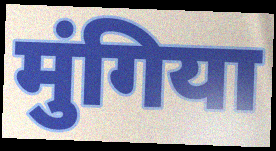
मुंगिया